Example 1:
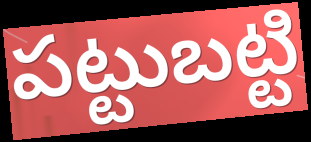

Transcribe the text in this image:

పట్టుబట్టి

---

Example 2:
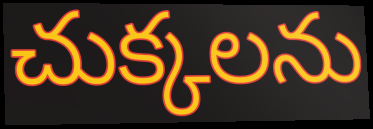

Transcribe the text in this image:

చుక్కలను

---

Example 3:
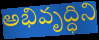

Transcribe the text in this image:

అభివృద్ధిని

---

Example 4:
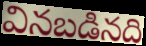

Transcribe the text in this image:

వినబడినది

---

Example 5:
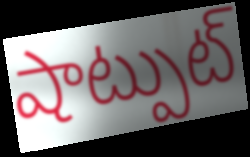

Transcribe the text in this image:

షాట్పుట్